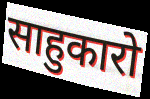
साहुकारो